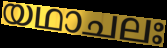
യഥാചലഃ